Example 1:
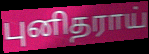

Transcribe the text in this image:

புனிதராய்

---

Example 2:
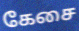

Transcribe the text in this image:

கேசை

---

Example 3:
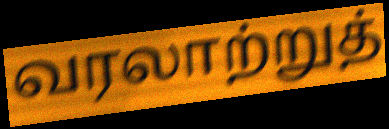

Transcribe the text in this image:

வரலாற்றுத்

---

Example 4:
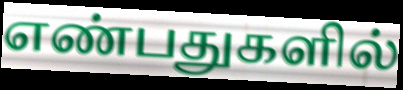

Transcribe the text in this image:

எண்பதுகளில்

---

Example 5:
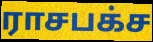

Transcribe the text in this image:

ராசபக்ச